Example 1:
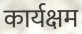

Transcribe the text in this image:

कार्यक्षम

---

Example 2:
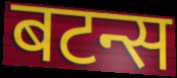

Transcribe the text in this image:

बटन्स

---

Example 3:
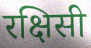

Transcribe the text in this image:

रक्षिसी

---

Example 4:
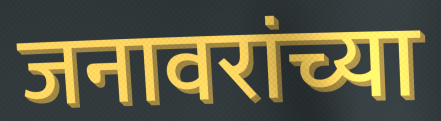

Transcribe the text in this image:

जनावरांच्या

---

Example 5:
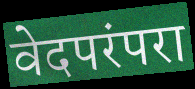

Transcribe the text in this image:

वेदपरंपरा